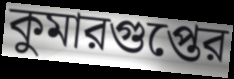
কুমারগুপ্তের